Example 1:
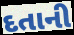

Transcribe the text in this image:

દતાની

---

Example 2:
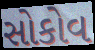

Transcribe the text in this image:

સોકોવ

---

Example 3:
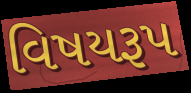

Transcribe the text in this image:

વિષયરૂપ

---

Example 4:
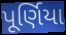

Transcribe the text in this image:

પૂર્ણિયા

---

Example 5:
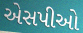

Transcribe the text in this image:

એસપીઓ